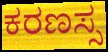
ಕರಣಸ್ಸ